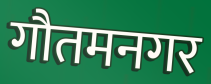
गौतमनगर